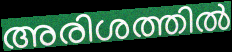
അരിശത്തിൽ